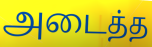
அடைத்த